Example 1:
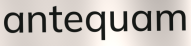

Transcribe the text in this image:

antequam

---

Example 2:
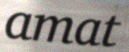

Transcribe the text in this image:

amat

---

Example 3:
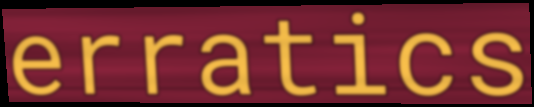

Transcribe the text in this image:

erratics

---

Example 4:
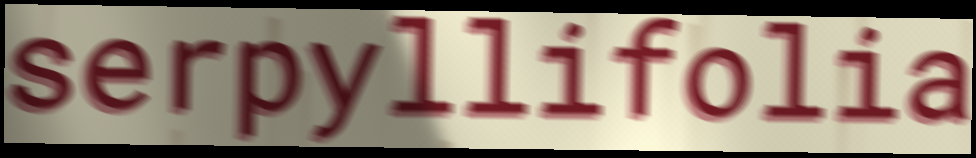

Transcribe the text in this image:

serpyllifolia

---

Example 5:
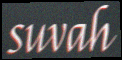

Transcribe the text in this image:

suvah